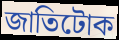
জাতিটোক